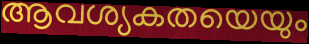
ആവശ്യകതയെയും